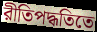
রীতিপদ্ধতিতে